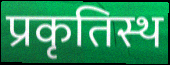
प्रकृतिस्थ